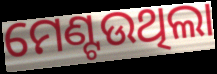
ମେଣ୍ଟଉଥିଲା